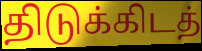
திடுக்கிடத்